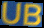
UB